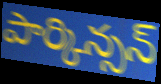
పార్కిన్సన్